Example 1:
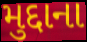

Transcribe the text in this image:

મુદ્દાના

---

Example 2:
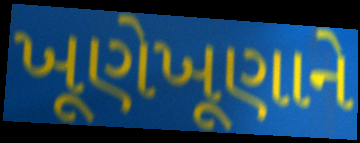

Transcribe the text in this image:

ખૂણેખૂણાને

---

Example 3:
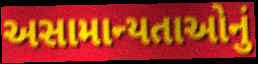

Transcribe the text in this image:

અસામાન્યતાઓનું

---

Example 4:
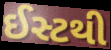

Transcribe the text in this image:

ઈસ્ટથી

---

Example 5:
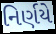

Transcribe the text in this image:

નિર્ણયે